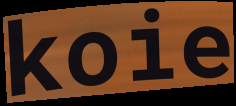
koie